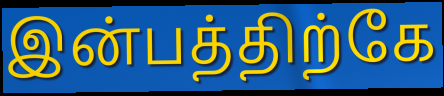
இன்பத்திற்கே